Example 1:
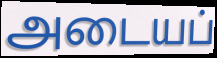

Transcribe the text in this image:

அடையப்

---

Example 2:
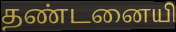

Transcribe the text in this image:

தண்டனையி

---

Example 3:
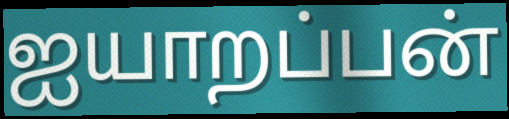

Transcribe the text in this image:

ஐயாறப்பன்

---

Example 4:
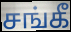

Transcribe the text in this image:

சங்கீ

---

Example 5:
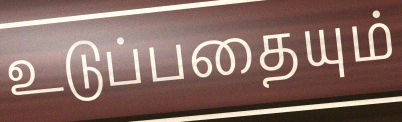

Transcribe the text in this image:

உடுப்பதையும்